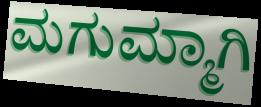
ಮಗುಮ್ಮಾಗಿ